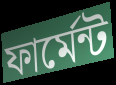
ফার্মেন্ট